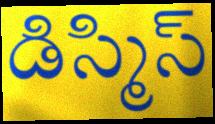
డిస్మిస్